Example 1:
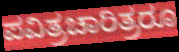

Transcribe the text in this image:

ಪವಿತ್ರಚಾರಿತ್ರರೂ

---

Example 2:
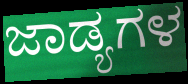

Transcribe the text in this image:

ಜಾಡ್ಯಗಳ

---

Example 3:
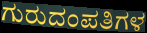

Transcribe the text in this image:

ಗುರುದಂಪತಿಗಳ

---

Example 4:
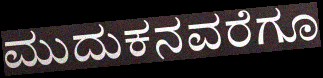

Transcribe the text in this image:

ಮುದುಕನವರೆಗೂ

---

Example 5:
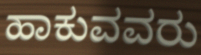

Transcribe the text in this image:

ಹಾಕುವವರು